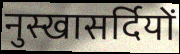
नुस्खासर्दियों